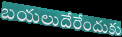
బయలుదేరేందుకు